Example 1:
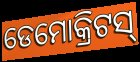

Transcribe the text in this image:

ଡେମୋକ୍ରିଟସ୍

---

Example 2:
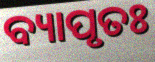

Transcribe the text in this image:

ବ୍ୟାପୃତଃ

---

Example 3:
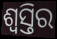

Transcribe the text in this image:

ଶ୍ୱସ୍ତିର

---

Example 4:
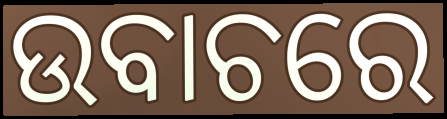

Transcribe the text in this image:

ଉବାଚରେ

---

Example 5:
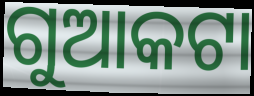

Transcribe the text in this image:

ଗୁଆକଟା